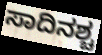
ಸಾದಿನಶ್ಚ